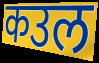
कउल